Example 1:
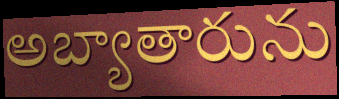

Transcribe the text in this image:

అబ్యాతారును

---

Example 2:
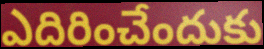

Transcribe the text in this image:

ఎదిరించేందుకు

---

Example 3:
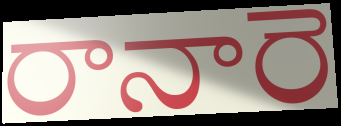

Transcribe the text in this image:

రానారె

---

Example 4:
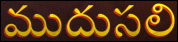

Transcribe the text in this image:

ముదుసలి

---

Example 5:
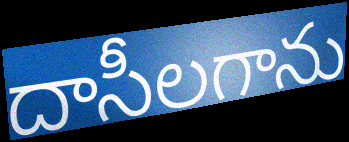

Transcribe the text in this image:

దాసీలగాను